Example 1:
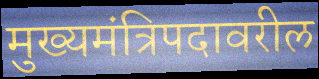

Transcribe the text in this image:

मुख्यमंत्रिपदावरील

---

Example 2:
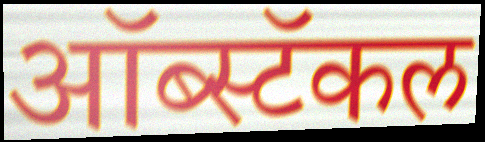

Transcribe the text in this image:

ऑब्स्टॅकल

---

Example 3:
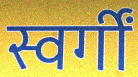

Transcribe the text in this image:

स्वर्गीं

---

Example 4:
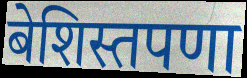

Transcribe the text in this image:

बेशिस्तपणा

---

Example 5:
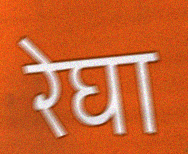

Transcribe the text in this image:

रेघा